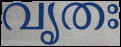
വൃതഃ